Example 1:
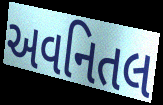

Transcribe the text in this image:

અવનિતલ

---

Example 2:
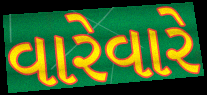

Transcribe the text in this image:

વારેવારે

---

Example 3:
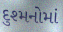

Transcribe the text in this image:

દુશ્મનોમાં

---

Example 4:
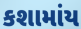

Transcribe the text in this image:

કશામાંય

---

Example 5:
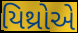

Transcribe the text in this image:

યિથ્રોએ